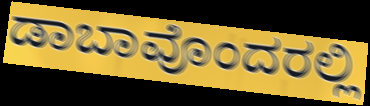
ಡಾಬಾವೊಂದರಲ್ಲಿ